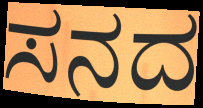
ಸನದ